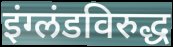
इंग्लंडविरुद्ध